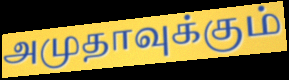
அமுதாவுக்கும்